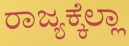
ರಾಜ್ಯಕ್ಕೆಲ್ಲಾ